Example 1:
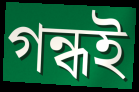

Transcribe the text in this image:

গন্ধই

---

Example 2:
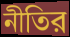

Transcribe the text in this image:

নীতির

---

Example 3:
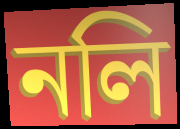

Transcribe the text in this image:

নলি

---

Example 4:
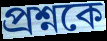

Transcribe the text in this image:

প্রশ্নকে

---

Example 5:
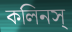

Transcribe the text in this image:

কলিনস্